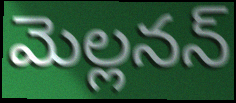
మెల్లనన్